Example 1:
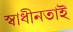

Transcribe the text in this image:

স্বাধীনতাই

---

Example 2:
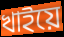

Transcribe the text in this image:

খাইয়ে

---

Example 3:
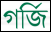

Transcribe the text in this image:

গৰ্জি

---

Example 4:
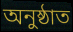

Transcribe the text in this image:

অনুষ্ঠাত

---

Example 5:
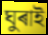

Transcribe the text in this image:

ঘুৰাই